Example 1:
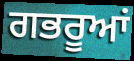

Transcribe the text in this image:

ਗਭਰੂਆਂ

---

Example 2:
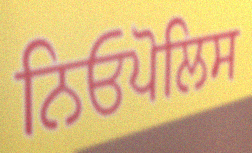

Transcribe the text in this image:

ਨਿਓਪੋਲਿਸ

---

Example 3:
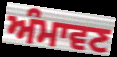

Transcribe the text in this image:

ਅੰਮਾਵਣ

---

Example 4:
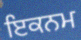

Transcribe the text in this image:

ਇਕਨਮ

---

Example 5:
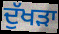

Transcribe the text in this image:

ਦੁੱਖਡ਼ਾ